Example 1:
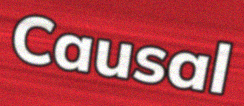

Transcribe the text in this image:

Causal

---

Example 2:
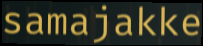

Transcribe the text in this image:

samajakke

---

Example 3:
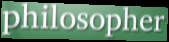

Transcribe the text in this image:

philosopher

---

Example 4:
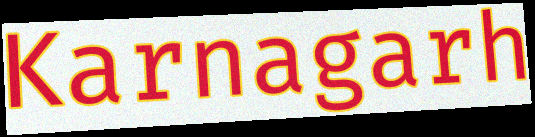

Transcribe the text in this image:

Karnagarh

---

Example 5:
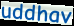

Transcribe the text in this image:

uddhav